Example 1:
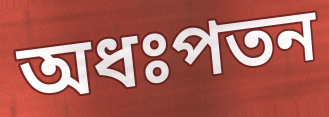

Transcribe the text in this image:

অধঃপতন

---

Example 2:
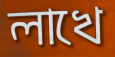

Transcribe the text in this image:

লাখে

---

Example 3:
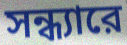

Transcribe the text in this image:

সন্ধ্যারে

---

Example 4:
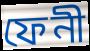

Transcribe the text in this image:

ফেনী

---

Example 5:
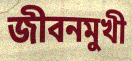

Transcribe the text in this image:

জীবনমুখী